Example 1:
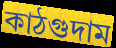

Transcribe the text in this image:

কাঠগুদাম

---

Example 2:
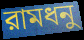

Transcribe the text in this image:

রামধনু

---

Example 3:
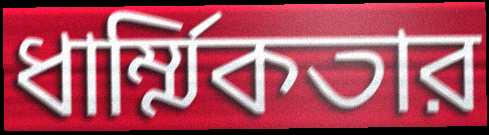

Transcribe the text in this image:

ধার্ম্মিকতার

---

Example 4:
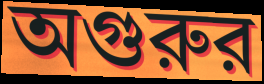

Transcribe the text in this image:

অগুরুর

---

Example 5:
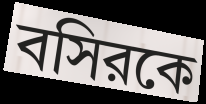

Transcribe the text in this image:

বসিরকে